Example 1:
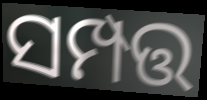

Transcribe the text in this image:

ସମ୍ପତ୍ତ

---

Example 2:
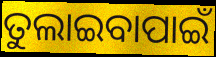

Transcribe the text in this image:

ତୁଲାଇବାପାଇଁ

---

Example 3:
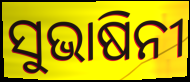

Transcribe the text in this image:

ସୁଭାଷିନୀ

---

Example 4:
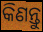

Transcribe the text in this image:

କିଣନ୍ତୁ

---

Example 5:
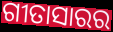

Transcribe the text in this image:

ଗୀତାସାରର